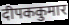
दीपककुमार